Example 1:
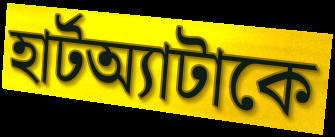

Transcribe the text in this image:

হার্টঅ্যাটাকে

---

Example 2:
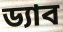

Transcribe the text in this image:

ড্যাব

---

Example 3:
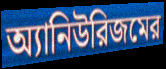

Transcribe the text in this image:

অ্যানিউরিজমের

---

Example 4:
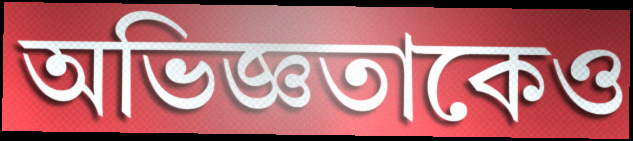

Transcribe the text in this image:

অভিজ্ঞতাকেও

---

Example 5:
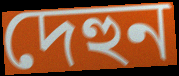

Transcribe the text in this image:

দেহুন